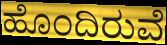
ಹೊಂದಿರುವೆ